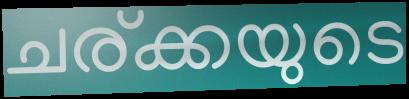
ചര്ക്കയുടെ